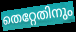
തെറ്റേതിനും